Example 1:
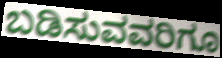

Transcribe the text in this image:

ಬಡಿಸುವವರಿಗೂ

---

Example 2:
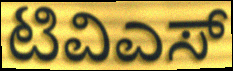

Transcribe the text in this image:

ಟಿವಿಎಸ್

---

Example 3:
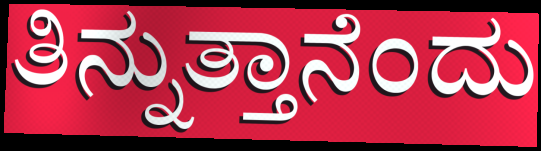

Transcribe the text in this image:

ತಿನ್ನುತ್ತಾನೆಂದು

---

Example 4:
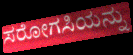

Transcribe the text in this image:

ಸರೋಗಸಿಯನ್ನು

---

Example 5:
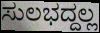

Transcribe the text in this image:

ಸುಲಭದ್ದಲ್ಲ